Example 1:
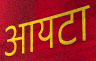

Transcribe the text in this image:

आयटा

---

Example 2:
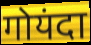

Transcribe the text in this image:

गोयंदा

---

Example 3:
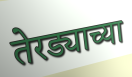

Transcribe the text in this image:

तेरड्याच्या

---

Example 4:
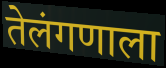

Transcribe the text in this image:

तेलंगणाला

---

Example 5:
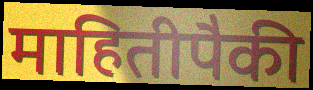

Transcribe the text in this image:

माहितीपैकी